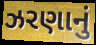
ઝરણાનું